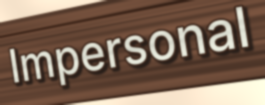
Impersonal